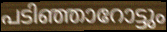
പടിഞ്ഞാറോട്ടും